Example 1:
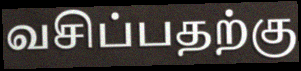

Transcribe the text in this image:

வசிப்பதற்கு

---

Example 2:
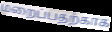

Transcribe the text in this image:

மறைப்பதற்காக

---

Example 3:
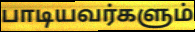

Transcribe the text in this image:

பாடியவர்களும்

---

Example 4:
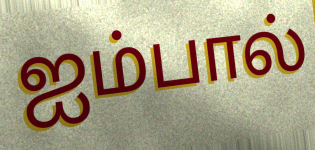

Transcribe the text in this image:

ஐம்பால்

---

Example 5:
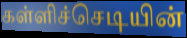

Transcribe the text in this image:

கள்ளிச்செடியின்